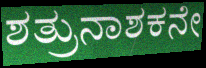
ಶತ್ರುನಾಶಕನೇ